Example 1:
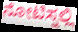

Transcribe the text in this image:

ನೋಟಿಸ್ನಲ್ಲಿ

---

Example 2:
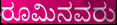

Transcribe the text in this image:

ರೂಮಿನವರು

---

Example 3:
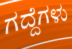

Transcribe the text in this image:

ಗದ್ದೆಗಳು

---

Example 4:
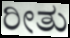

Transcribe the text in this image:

ರೀತು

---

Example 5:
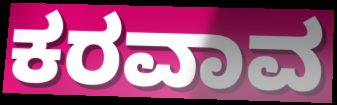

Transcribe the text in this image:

ಕರವಾವ